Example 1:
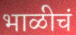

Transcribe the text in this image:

भाळीचं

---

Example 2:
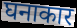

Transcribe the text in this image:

घनाकार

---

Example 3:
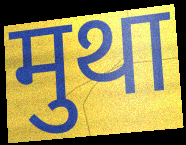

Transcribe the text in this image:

मुथा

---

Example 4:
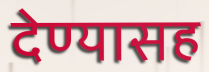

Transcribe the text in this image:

देण्यासह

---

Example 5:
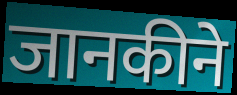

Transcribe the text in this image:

जानकीने